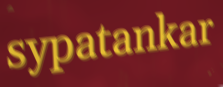
sypatankar